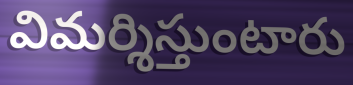
విమర్శిస్తుంటారు